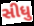
સીધુ